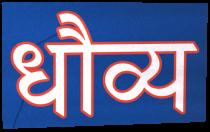
धौव्य